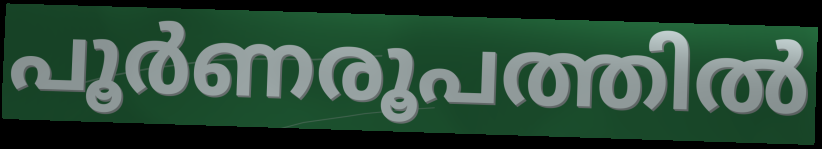
പൂർണരൂപത്തിൽ